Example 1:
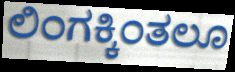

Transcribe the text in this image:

ಲಿಂಗಕ್ಕಿಂತಲೂ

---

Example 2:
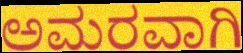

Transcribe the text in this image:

ಅಮರವಾಗಿ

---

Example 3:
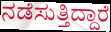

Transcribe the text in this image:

ನಡೆಸುತ್ತಿದ್ದಾರೆ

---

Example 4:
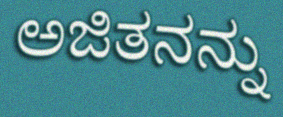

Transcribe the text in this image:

ಅಜಿತನನ್ನು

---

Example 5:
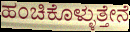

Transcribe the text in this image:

ಹಂಚಿಕೊಳ್ಳುತ್ತೇನೆ